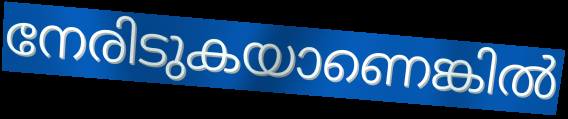
നേരിടുകയാണെങ്കിൽ